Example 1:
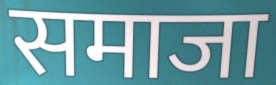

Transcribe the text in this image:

समाजा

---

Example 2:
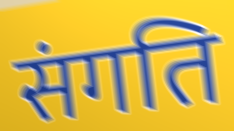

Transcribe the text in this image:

संगति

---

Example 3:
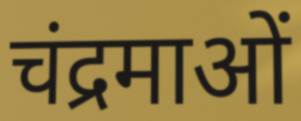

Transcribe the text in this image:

चंद्रमाओं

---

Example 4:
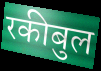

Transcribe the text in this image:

रकीबुल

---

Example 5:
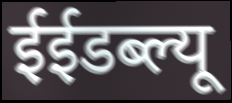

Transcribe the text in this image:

ईईडब्ल्यू